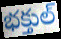
భక్తుల్